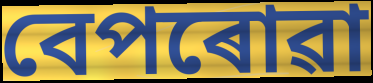
বেপৰোৱা